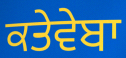
ਕਤੇਵੇਬਾ